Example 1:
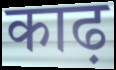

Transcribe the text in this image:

काढ़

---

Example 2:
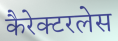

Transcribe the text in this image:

कैरेक्टरलेस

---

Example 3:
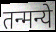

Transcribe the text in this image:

तन्मन्ये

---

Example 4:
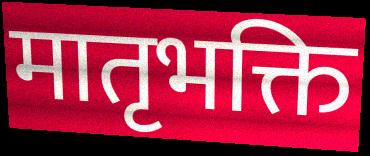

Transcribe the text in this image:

मातृभक्ति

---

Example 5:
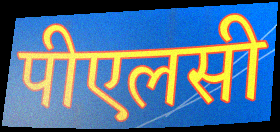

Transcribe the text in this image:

पीएलसी